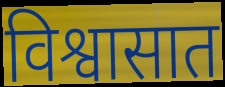
विश्वासात